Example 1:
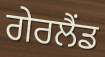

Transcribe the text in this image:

ਗੇਰਲੈਂਡ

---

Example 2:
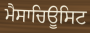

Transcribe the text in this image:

ਮੈਸਾਚਿਊਸਿਟ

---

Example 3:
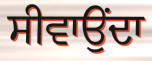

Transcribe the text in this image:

ਸੀਵਾਉਂਦਾ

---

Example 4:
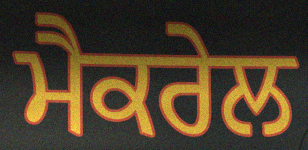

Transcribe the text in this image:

ਮੈਕਰੇਲ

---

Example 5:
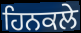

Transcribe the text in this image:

ਹਿਨਕਲੇ